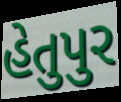
હેતુપુર